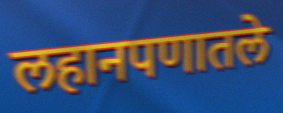
लहानपणातले